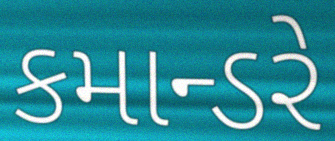
કમાન્ડરે